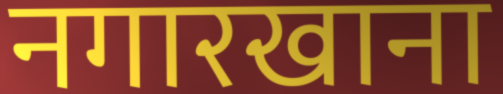
नगारखाना